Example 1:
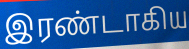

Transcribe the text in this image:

இரண்டாகிய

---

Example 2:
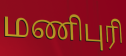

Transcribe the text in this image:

மணிபுரி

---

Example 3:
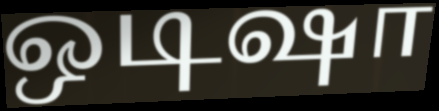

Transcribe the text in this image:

ஒடிஷா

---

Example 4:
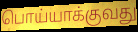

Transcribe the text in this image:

பொய்யாக்குவது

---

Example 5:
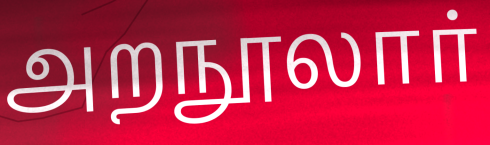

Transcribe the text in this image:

அறநூலார்